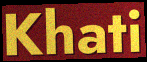
Khati